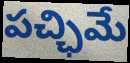
పచ్ఛిమే